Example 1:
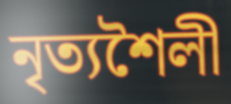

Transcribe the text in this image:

নৃত্যশৈলী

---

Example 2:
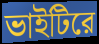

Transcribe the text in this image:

ভাইটিরে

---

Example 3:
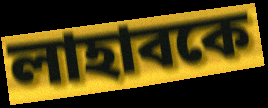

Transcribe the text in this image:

লাহাবকে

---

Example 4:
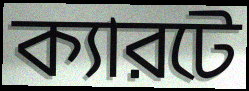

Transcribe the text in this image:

ক্যারটে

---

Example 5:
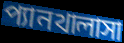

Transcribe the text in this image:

প্যানথালাসা